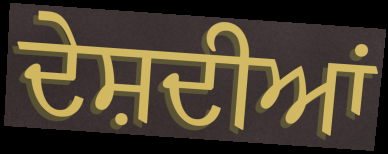
ਦੇਸ਼ਦੀਆਂ